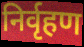
निर्वृहण